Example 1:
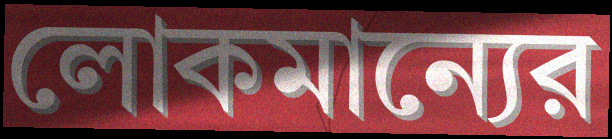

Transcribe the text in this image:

লোকমান্যের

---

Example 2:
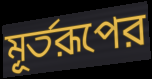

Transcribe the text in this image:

মূর্তরূপের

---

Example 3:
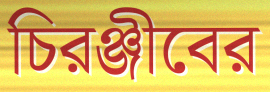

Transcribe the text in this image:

চিরঞ্জীবের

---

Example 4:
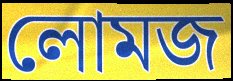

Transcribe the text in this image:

লোমজ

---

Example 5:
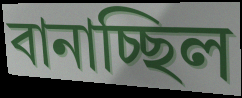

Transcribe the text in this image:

বানাচ্ছিল